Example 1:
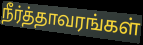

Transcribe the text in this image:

நீர்த்தாவரங்கள்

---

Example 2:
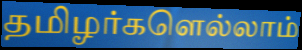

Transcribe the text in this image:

தமிழர்களெல்லாம்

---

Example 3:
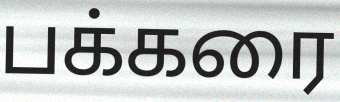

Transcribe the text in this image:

பக்கரை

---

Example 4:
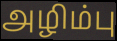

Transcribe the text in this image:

அழிம்பு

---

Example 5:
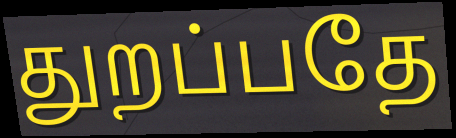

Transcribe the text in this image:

துறப்பதே